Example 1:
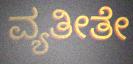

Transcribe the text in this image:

ವ್ಯತೀತೇ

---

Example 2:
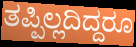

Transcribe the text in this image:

ತಪ್ಪಿಲ್ಲದಿದ್ದರೂ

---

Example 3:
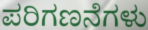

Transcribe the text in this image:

ಪರಿಗಣನೆಗಳು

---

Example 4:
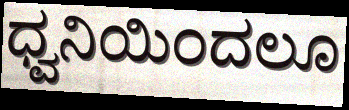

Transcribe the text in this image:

ಧ್ವನಿಯಿಂದಲೂ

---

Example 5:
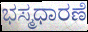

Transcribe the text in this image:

ಭಸ್ಮಧಾರಣೆ